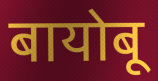
बायोबू